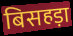
बिसहड़ा